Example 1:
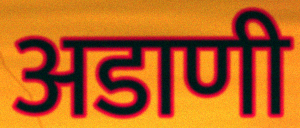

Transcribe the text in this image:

अडाणी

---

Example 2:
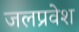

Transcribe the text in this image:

जलप्रवेश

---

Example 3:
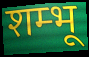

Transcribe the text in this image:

शम्भू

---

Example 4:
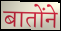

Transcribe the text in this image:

बातोंने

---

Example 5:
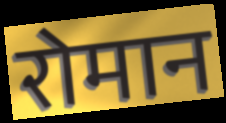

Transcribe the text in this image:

रोमान